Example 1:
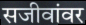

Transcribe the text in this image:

सजीवांवर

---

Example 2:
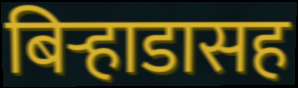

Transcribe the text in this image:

बिऱ्हाडासह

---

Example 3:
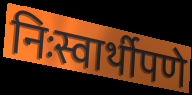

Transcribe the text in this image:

निःस्वार्थीपणे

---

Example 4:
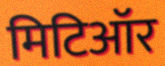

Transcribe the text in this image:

मिटिऑर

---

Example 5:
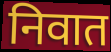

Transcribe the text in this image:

निवात